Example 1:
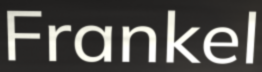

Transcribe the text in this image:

Frankel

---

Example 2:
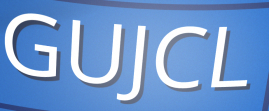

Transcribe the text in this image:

GUJCL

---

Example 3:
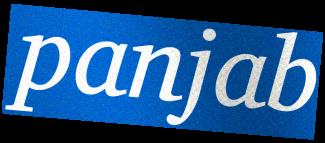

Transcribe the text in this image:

panjab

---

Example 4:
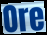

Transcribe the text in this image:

Ore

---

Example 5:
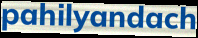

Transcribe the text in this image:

pahilyandach